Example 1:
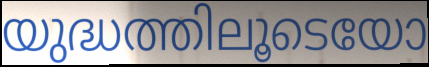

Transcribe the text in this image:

യുദ്ധത്തിലൂടെയോ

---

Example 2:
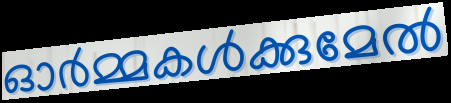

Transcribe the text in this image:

ഓർമ്മകൾക്കുമേൽ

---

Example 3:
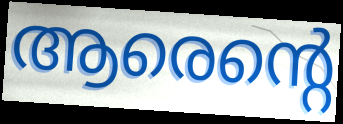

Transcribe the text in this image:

ആരെന്റെ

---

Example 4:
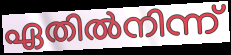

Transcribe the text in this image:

ഏതിൽനിന്ന്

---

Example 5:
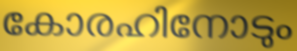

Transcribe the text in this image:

കോരഹിനോടും